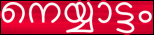
നെയ്യാട്ടം